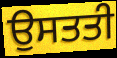
ਉਸਤਤੀ